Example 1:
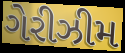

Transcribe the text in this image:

ગેરીઝીમ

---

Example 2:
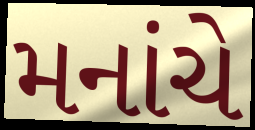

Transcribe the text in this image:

મનાંચે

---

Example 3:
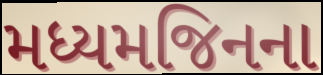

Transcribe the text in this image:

મધ્યમજિનના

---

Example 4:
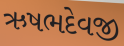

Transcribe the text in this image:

ઋષભદેવજી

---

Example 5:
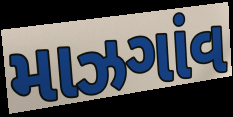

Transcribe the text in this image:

માઝગાંવ